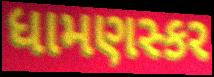
ધામણસ્કર